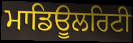
ਮਾਡਿਊਲਰਿਟੀ